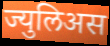
ज्युलिअस